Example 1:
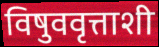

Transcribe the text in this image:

विषुववृत्ताशी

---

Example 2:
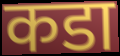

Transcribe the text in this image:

कडा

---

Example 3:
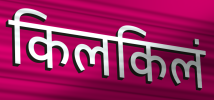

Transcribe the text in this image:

किलकिलं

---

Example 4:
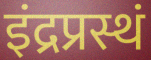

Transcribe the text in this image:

इंद्रप्रस्थं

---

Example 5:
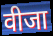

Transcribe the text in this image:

वीजा